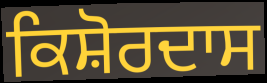
ਕਿਸ਼ੋਰਦਾਸ